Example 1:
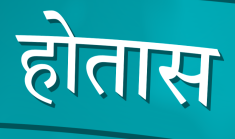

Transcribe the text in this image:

होतास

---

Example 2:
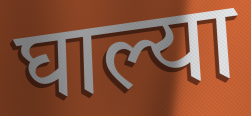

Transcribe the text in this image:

घाल्या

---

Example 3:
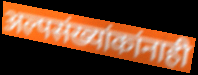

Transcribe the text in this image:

अल्पसंख्यांकांनाही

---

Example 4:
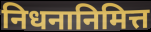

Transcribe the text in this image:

निधनानिमित्त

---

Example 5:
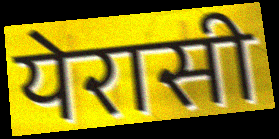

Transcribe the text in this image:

येरासी